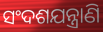
ସଂଦଶଯନ୍ତ୍ରାଣି